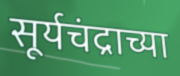
सूर्यचंद्राच्या